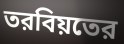
তরবিয়তের